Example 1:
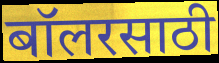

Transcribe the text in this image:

बॉलरसाठी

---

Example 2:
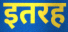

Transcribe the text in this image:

इतरह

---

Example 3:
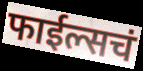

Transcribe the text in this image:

फाईल्सचं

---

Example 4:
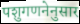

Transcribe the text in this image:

पशुगणनेनुसार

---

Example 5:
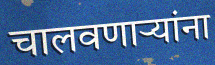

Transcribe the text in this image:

चालवणार्‍यांना